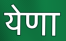
येणा